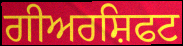
ਗੀਅਰਸ਼ਿਫਟ